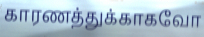
காரணத்துக்காகவோ